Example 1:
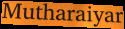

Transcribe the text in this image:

Mutharaiyar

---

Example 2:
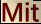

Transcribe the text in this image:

Mit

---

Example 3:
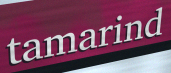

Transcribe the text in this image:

tamarind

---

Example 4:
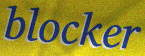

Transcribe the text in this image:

blocker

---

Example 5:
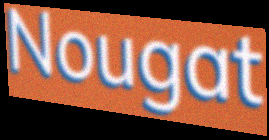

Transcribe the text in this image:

Nougat